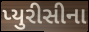
પ્યુરીસીના